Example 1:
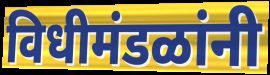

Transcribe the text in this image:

विधीमंडळांनी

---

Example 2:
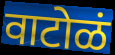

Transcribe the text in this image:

वाटोळं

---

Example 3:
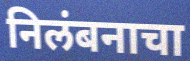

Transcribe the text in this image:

निलंबनाचा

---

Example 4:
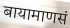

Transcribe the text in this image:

बायामाणसं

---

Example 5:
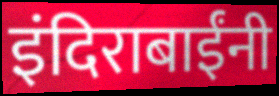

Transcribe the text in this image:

इंदिराबाईंनी